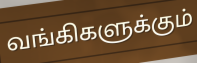
வங்கிகளுக்கும்